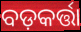
ବଡ଼କର୍ତ୍ତା